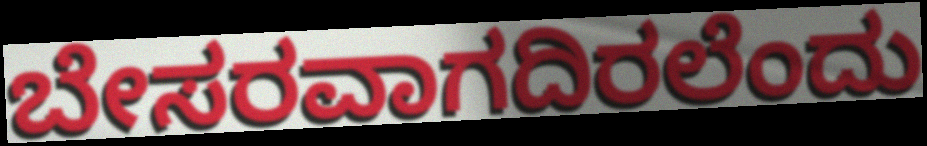
ಬೇಸರವಾಗದಿರಲೆಂದು